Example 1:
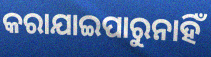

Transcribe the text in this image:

କରାଯାଇପାରୁନାହିଁ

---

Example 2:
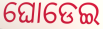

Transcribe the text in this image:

ଘୋଡେଇ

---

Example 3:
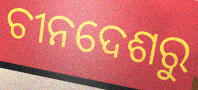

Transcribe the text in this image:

ଚୀନଦେଶରୁ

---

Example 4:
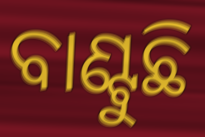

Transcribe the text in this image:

ବାଣ୍ଟୁଛି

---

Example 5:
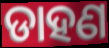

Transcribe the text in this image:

ଡାହଣ